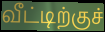
வீட்டிற்குச்